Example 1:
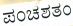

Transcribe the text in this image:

ಪಂಚಶತಂ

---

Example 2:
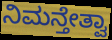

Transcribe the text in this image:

ನಿಮನ್ತೇತ್ವಾ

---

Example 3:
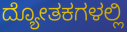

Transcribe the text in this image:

ದ್ಯೋತಕಗಳಲ್ಲಿ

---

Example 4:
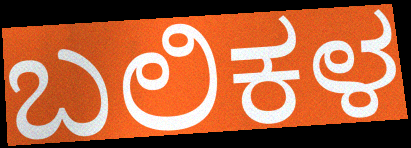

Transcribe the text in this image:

ಬಲಿಕಳ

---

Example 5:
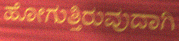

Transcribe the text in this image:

ಹೋಗುತ್ತಿರುವುದಾಗಿ